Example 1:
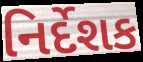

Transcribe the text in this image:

નિર્દેશક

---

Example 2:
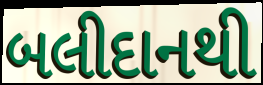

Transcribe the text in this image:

બલીદાનથી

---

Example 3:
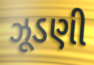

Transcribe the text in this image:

ઝૂડણી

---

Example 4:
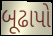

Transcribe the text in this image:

બૂઢાપો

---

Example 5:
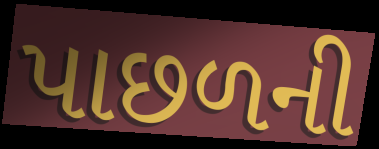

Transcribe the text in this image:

પાછળની